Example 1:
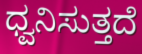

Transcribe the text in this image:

ಧ್ವನಿಸುತ್ತದೆ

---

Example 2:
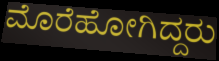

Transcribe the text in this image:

ಮೊರೆಹೋಗಿದ್ದರು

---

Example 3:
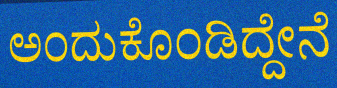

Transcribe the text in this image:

ಅಂದುಕೊಂಡಿದ್ದೇನೆ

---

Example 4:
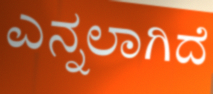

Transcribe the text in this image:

ಎನ್ನಲಾಗಿದೆ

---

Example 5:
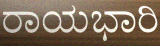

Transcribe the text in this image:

ರಾಯಭಾರಿ